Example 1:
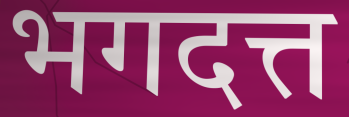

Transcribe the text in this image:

भगदत्त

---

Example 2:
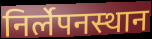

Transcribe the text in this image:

निर्लेपनस्थान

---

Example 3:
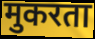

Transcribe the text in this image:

मुकरता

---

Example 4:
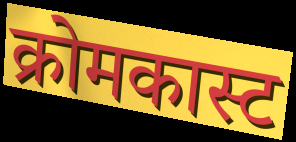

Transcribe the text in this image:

क्रोमकास्ट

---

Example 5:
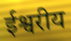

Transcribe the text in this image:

ईश्वरीय